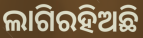
ଲାଗିରହିଅଛି